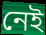
নেই